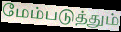
மேம்படுத்தும்